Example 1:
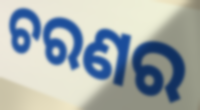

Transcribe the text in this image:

ଚରଣର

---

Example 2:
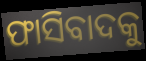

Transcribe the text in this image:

ଫାସିବାଦକୁ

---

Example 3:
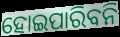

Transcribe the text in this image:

ହୋଇପାରିବନି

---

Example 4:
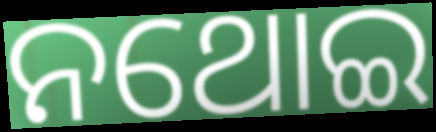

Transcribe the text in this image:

ନଥୋଇ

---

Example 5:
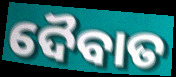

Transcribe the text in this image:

ଦୈବାତ